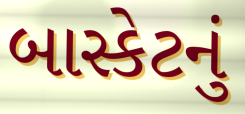
બાસ્કેટનું